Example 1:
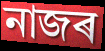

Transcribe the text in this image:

নাজৰ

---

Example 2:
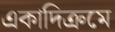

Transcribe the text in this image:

একাদিক্ৰমে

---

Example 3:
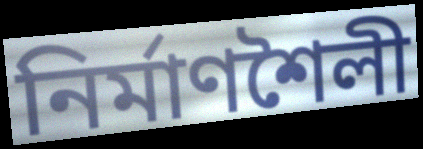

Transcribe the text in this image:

নিৰ্মাণশৈলী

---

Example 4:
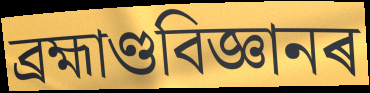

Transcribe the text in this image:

ব্ৰহ্মাণ্ডবিজ্ঞানৰ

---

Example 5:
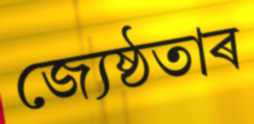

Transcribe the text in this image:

জ্যেষ্ঠতাৰ